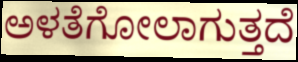
ಅಳತೆಗೋಲಾಗುತ್ತದೆ